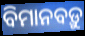
ବିମାନବଡ଼ୁ